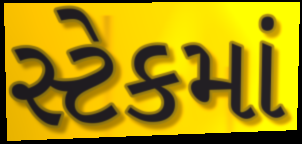
સ્ટેકમાં